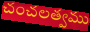
చంచలత్వము